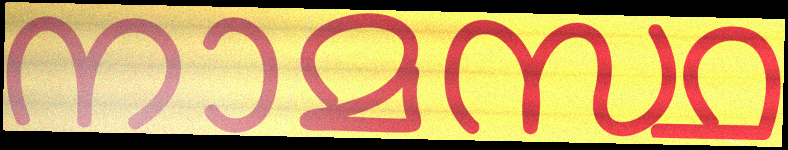
നാമസ്ഥ